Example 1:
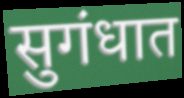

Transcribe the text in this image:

सुगंधात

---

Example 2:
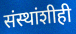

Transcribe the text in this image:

संस्थांशीही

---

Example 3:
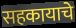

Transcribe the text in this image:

सहकायाचे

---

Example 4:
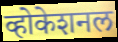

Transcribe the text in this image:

व्होकेशनल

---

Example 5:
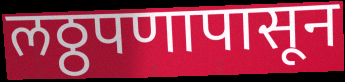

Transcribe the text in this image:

लठ्ठपणापासून